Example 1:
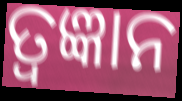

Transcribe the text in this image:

ତ୍ୱଜ୍ଞାନ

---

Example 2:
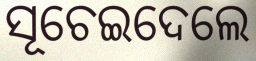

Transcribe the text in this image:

ସୂଚେଇଦେଲେ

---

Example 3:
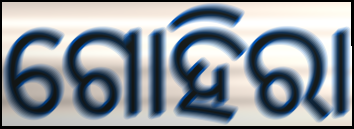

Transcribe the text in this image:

ଗୋହିରା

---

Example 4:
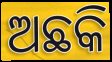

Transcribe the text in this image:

ଅଛକି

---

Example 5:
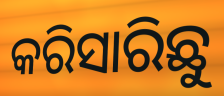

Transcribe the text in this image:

କରିସାରିଛୁ